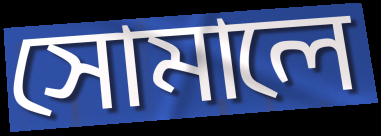
সোমালে